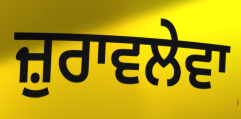
ਜ਼ੁਰਾਵਲੇਵਾ